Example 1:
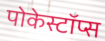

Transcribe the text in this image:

पोकेस्टॉप्स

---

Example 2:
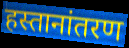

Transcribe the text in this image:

हस्तानांतरण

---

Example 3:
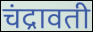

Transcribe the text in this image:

चंद्रावती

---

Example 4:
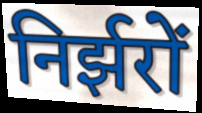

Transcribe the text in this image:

निर्झरों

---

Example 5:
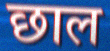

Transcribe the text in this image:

छाल